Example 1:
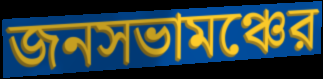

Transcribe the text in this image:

জনসভামঞ্চের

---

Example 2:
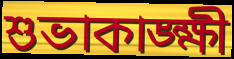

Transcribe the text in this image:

শুভাকাঙ্ক্ষী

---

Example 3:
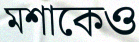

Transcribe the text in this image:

মশাকেও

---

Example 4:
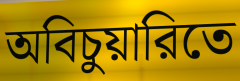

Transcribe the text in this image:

অবিচুয়ারিতে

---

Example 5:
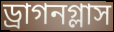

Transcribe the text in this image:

ড্রাগনগ্লাস